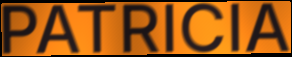
PATRICIA